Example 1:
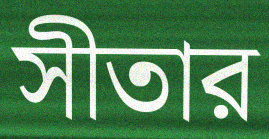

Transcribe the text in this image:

সীতার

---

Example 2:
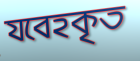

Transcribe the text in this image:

যবেহকৃত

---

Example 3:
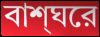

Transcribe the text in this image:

বাশ্ঘরে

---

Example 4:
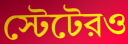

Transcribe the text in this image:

স্টেটেরও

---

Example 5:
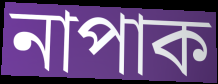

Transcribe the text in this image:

নাপাক